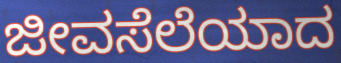
ಜೀವಸೆಲೆಯಾದ